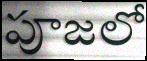
పూజలో